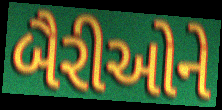
બૈરીઓને